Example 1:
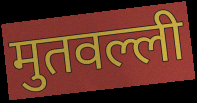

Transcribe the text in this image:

मुतवल्ली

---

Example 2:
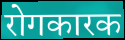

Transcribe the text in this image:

रोगकारक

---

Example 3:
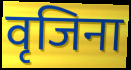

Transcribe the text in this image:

वृजिना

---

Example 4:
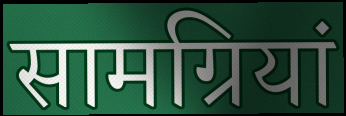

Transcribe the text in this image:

सामग्रियां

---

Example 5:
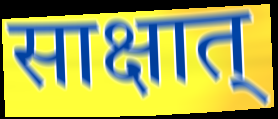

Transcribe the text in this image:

साक्षात्